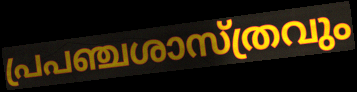
പ്രപഞ്ചശാസ്ത്രവും